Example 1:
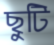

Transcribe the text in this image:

ছুটি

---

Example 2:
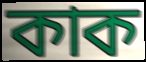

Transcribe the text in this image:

কাক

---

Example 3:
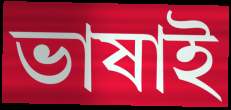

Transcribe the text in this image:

ভাষাই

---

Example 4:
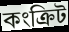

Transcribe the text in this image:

কংক্ৰিট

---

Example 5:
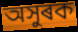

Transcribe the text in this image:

অসুৰক